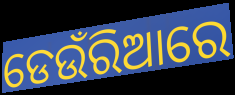
ଡେଉଁରିଆରେ